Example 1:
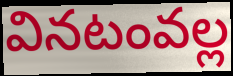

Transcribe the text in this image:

వినటంవల్ల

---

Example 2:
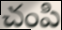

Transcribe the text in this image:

చంపి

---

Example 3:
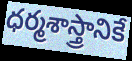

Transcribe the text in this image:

ధర్మశాస్త్రానికే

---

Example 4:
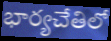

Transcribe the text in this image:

భార్యచేతిలో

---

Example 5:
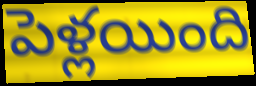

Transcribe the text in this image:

పెళ్లయింది